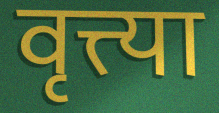
वृत्त्या